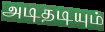
அடிதடியும்